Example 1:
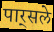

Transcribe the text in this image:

पार्सले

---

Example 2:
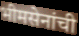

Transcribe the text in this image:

भीमसेनांची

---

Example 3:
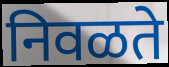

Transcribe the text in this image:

निवळते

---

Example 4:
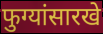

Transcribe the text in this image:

फुग्यांसारखे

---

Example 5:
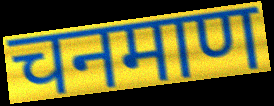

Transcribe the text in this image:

चनमाण